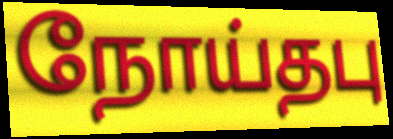
நோய்தபு